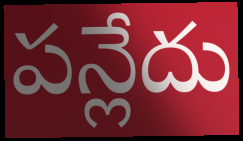
పన్లేదు